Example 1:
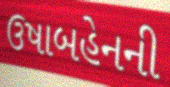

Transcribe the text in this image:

ઉષાબહેનની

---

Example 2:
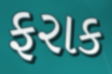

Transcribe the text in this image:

ફરાક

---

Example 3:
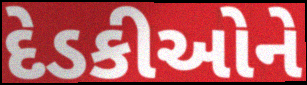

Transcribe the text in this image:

દેડકીઓને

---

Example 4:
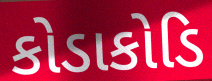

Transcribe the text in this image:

કોડાકોડિ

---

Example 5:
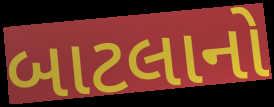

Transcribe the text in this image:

બાટલાનો